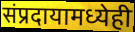
संप्रदायामध्येही